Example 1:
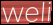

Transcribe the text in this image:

weli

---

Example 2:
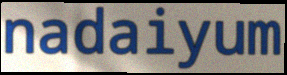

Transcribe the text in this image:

nadaiyum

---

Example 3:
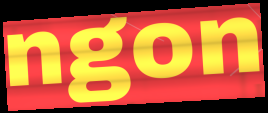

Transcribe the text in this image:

ngon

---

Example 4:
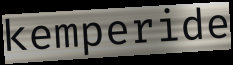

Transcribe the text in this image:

kemperide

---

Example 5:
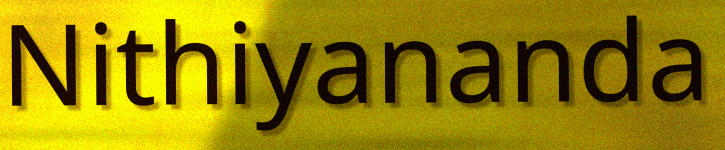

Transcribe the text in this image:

Nithiyananda